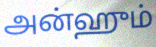
அன்ஹும்